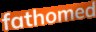
fathomed